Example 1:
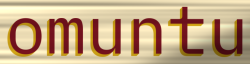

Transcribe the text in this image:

omuntu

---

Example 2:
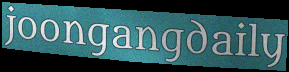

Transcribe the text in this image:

joongangdaily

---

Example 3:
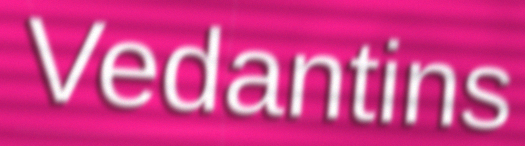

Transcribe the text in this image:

Vedantins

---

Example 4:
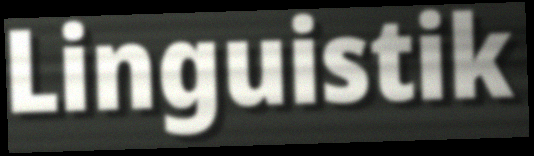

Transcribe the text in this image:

Linguistik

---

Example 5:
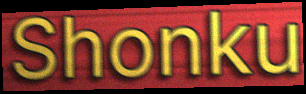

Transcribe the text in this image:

Shonku